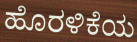
ಹೊರಳಿಕೆಯ